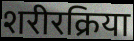
शरीरक्रिया